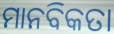
ମାନବିକତା